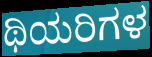
ಥಿಯರಿಗಳ